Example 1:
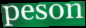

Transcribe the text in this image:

peson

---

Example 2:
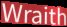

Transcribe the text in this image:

Wraith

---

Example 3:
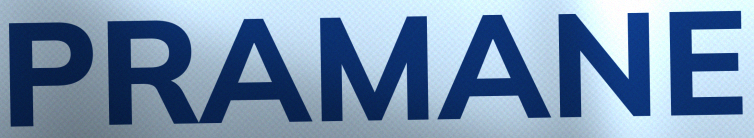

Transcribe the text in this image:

PRAMANE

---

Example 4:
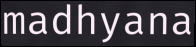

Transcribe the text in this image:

madhyana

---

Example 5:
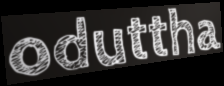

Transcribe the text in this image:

oduttha